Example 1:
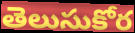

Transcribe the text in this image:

తెలుసుకోర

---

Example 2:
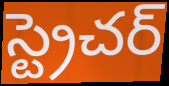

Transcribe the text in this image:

స్ట్రెచర్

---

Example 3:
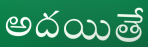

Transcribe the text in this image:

అదయితే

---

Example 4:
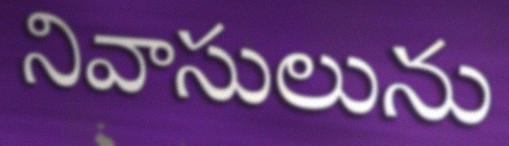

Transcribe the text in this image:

నివాసులును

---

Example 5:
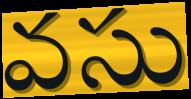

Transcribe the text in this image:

వసు